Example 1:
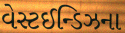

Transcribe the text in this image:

વેસ્ટઈન્ડિઝના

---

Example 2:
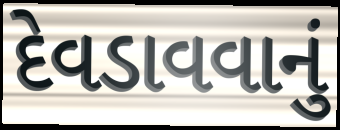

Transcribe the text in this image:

દેવડાવવાનું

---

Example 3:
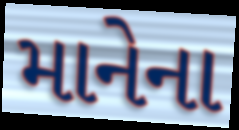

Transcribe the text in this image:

માનેના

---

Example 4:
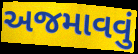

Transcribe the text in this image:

અજમાવવું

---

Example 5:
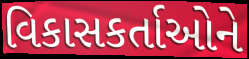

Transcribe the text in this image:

વિકાસકર્તાઓને